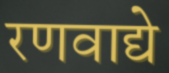
रणवाद्ये